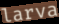
larva